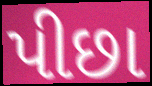
પીછા